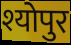
श्योपुर